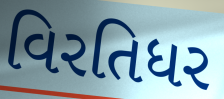
વિરતિધર